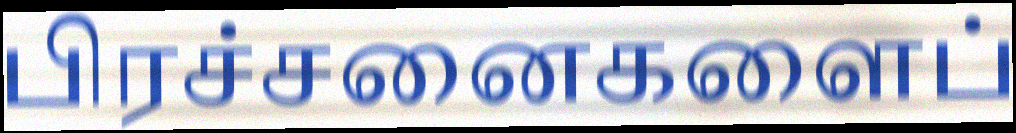
பிரச்சனைகளைப்